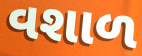
વશાળ